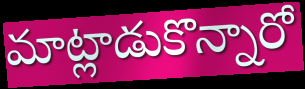
మాట్లాడుకొన్నారో